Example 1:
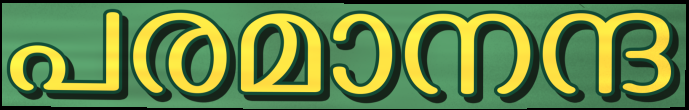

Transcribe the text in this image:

പരമാനന്ദ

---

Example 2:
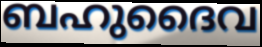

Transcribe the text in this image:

ബഹുദൈവ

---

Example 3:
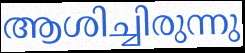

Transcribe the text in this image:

ആശിച്ചിരുന്നു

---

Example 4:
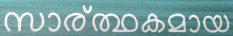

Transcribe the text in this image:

സാര്ത്ഥകമായ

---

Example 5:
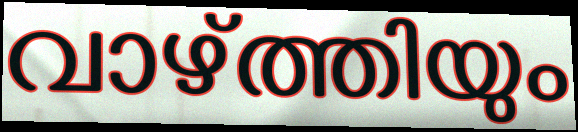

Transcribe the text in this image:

വാഴ്ത്തിയും